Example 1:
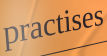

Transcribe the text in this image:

practises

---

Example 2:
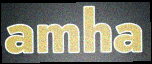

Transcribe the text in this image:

amha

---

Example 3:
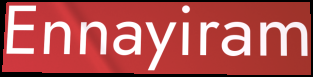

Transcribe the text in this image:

Ennayiram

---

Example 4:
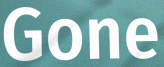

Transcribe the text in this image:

Gone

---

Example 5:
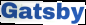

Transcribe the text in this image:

Gatsby